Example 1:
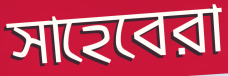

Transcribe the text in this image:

সাহেবেরা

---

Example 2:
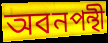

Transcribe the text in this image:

অবনপন্থী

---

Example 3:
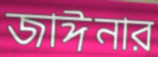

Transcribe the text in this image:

জাঈনার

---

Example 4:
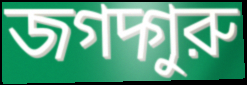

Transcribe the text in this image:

জগদ্গুরু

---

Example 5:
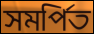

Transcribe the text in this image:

সমর্পিত